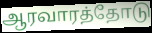
ஆரவாரத்தோடு